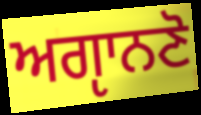
ਅਗੵਾਨਣੋ